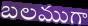
బలముగా